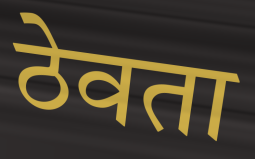
ठेवता